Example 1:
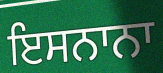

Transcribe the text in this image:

ਇਸਨਾਨਾ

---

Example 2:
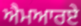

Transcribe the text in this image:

ਐਮਆਰਏ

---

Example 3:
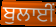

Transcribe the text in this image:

ਬੁਲਾਈਂ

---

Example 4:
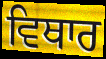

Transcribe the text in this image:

ਵਿਥਾਰ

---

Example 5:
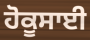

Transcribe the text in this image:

ਹੋਕੂਸਾਈ